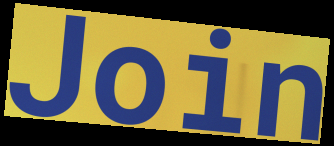
Join